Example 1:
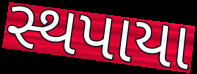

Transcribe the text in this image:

સ્થપાયા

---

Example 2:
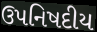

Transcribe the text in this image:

ઉપનિષદીય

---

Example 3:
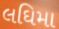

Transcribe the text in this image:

લઘિમા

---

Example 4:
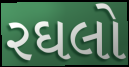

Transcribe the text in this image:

રઘલો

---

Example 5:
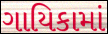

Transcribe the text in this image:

ગાયિકામાં